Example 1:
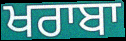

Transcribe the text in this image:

ਖਰਾਬਾ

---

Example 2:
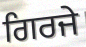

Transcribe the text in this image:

ਗਿਰਜੇ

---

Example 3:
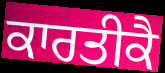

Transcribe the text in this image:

ਕਾਰਤੀਕੈ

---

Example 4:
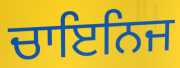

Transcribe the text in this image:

ਚਾਇਨਿਜ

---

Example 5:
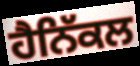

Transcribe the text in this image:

ਹੈਨਿੱਕਲ